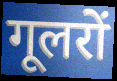
गूलरों